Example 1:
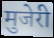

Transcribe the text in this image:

मुजेरी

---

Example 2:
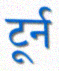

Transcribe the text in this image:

टूर्न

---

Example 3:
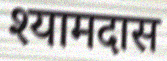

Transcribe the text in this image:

श्यामदास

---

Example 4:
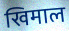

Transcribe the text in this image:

खिमाल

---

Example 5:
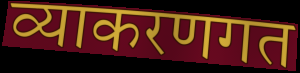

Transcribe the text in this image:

व्याकरणगत